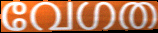
വേഗത